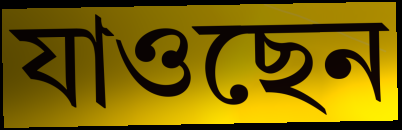
যাওছেন